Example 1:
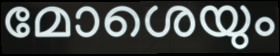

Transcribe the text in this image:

മോശെയും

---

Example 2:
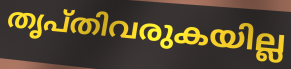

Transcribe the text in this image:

തൃപ്തിവരുകയില്ല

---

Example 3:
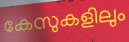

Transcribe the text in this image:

കേസുകളിലും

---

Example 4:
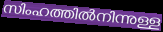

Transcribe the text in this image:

സിംഹത്തിൽനിന്നുള്ള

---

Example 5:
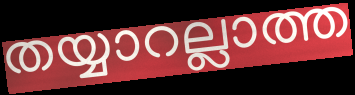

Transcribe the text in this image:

തയ്യാറല്ലാത്ത